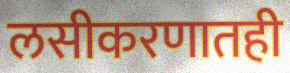
लसीकरणातही